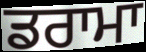
ਡਰਾਮਾ